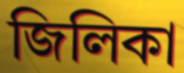
জিলিকা